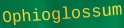
Ophioglossum